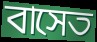
বাসেত